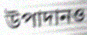
উপাদানও